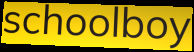
schoolboy